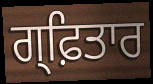
ਗ੍ਫ਼ਿਤਾਰ